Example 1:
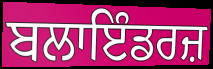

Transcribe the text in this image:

ਬਲਾਇੰਡਰਜ਼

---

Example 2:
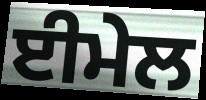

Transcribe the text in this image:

ਈਮੇਲ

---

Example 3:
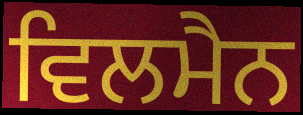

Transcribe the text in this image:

ਵਿਲਮੈਨ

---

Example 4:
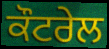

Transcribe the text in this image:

ਕੌਟਰੇਲ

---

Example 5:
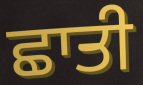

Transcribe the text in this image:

ਛਾਤੀ